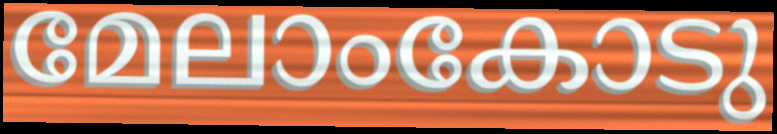
മേലാംകോടു